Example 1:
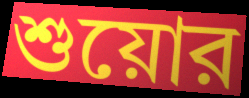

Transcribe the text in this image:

শুয়োর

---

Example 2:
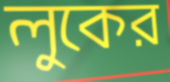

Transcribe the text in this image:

লুকের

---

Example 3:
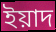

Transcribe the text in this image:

ইয়াদ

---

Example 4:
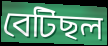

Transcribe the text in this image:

বেটিছল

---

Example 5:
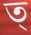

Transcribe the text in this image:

ত্